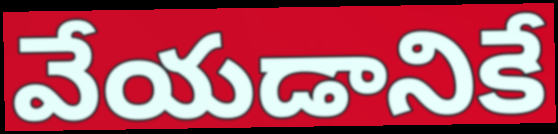
వేయడానికే